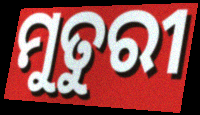
ମୁତୁରୀ